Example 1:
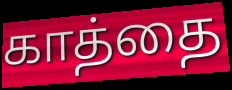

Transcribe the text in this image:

காத்தை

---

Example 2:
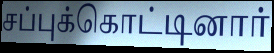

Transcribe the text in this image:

சப்புக்கொட்டினார்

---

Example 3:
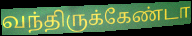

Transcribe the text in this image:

வந்திருக்கேண்டா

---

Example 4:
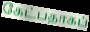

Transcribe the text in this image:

கேட்பதாகப்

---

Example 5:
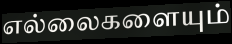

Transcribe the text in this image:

எல்லைகளையும்